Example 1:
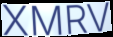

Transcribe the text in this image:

XMRV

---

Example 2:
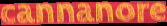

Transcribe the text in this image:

cannanore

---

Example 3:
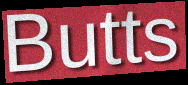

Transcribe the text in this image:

Butts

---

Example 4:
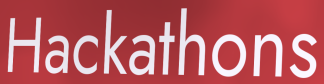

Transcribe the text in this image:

Hackathons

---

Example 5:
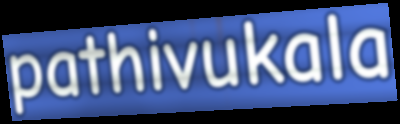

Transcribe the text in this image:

pathivukala